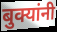
बुक्यांनी